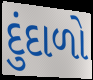
દુંદાળો